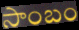
సాంబం